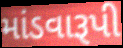
માંડવારૂપી